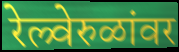
रेल्वेरुळांवर